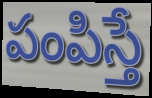
పంపిస్తే